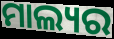
ମାଲ୍ୟର